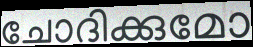
ചോദിക്കുമോ